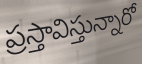
ప్రస్తావిస్తున్నారో